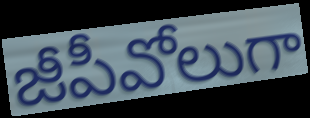
జీపీవోలుగా